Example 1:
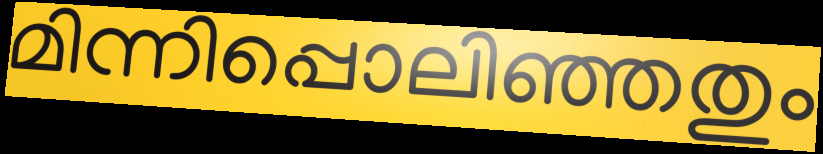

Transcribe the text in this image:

മിന്നിപ്പൊലിഞ്ഞതും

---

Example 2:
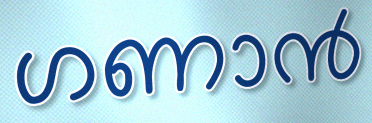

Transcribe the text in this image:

ഗണാൻ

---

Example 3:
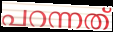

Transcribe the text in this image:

പറന്നത്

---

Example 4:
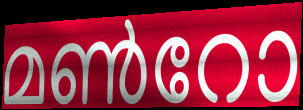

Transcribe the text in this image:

മൺറോ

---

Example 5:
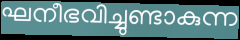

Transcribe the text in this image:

ഘനീഭവിച്ചുണ്ടാകുന്ന